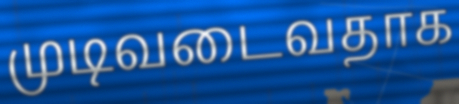
முடிவடைவதாக